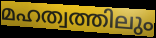
മഹത്വത്തിലും